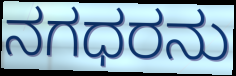
ನಗಧರನು